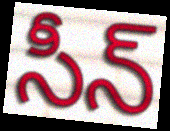
సీన్